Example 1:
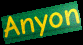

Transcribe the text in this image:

Anyon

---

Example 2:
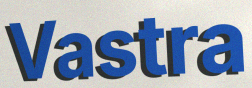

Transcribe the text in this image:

Vastra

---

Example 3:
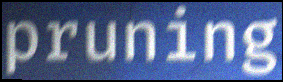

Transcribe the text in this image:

pruning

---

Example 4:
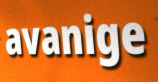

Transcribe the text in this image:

avanige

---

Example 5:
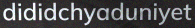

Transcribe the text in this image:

dididchyaduniyet